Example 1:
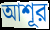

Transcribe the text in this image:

আশূর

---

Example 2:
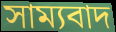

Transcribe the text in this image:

সাম্যবাদ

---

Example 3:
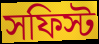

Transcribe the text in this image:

সফিস্ট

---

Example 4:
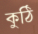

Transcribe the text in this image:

কুঠি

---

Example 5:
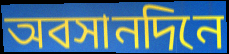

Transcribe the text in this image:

অবসানদিনে